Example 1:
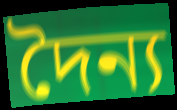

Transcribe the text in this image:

দৈন্য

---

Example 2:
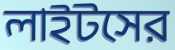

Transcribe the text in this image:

লাইটসের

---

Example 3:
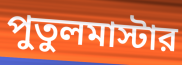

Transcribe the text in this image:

পুতুলমাস্টার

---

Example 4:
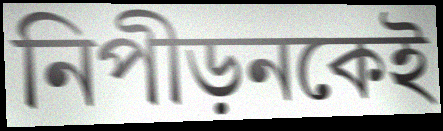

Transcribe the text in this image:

নিপীড়নকেই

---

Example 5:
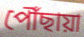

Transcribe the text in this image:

পৌঁছায়া